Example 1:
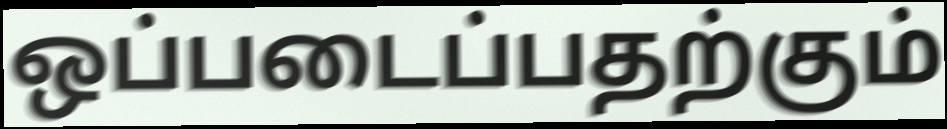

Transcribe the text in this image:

ஒப்படைப்பதற்கும்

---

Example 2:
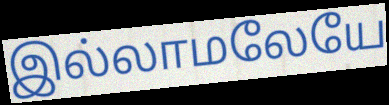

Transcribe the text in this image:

இல்லாமலேயே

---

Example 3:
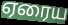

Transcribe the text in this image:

ஏரைய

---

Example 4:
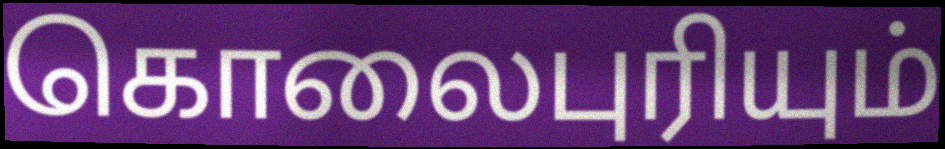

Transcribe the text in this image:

கொலைபுரியும்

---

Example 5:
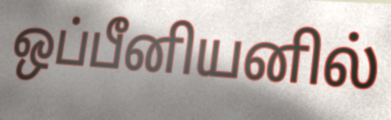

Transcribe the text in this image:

ஒப்பீனியனில்